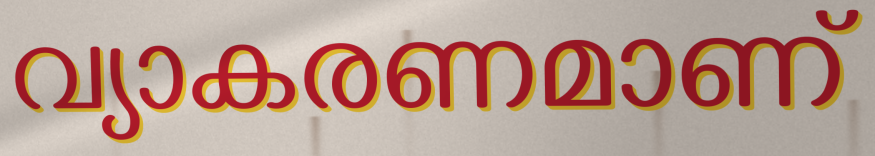
വ്യാകരണമാണ്